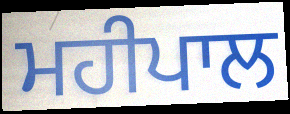
ਮਹੀਪਾਲ